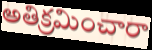
అతిక్రమించారా